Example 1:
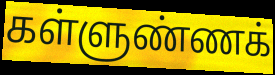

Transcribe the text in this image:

கள்ளுண்ணக்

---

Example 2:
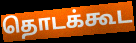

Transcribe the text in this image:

தொடக்கூட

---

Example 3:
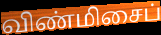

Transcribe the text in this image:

விண்மிசைப்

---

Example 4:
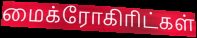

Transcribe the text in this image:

மைக்ரோகிரிட்கள்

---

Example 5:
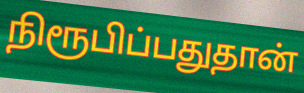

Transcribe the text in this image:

நிரூபிப்பதுதான்